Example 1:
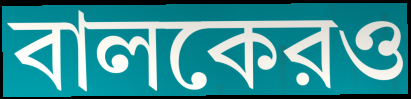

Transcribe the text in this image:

বালকেরও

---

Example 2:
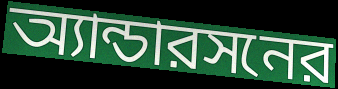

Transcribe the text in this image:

অ্যান্ডারসনের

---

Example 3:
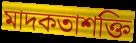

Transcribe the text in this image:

মাদকতাশক্তি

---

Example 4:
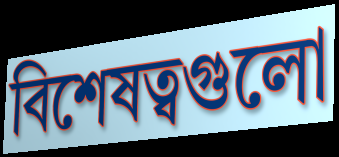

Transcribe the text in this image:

বিশেষত্বগুলো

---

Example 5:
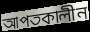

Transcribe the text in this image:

আপতকালীন